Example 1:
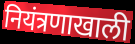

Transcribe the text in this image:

नियंत्रणाखाली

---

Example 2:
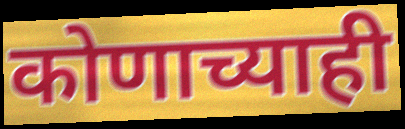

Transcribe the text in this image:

कोणाच्याही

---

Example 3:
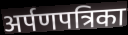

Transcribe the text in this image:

अर्पणपत्रिका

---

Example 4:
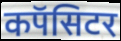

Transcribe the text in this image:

कपॅसिटर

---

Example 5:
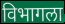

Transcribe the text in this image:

विभागला